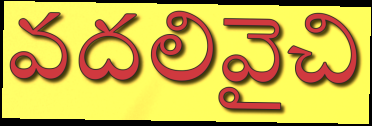
వదలివైచి